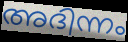
അദിന്നം